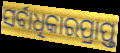
ସର୍ବାଧିକାରପ୍ରାପ୍ତ